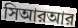
সিআরআর